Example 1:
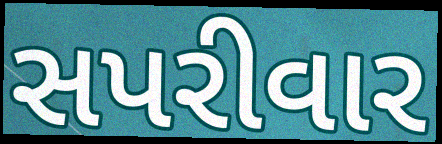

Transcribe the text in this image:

સપરીવાર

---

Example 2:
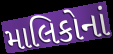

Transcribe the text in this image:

માલિકોનાં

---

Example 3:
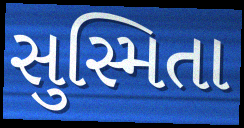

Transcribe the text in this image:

સુસ્મિતા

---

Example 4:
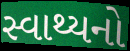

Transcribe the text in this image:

સ્વાથ્યનો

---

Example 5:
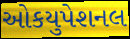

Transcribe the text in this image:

ઓકયુપેશનલ